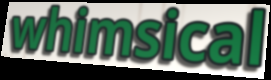
whimsical